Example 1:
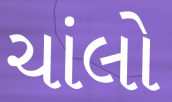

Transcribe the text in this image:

ચાંલો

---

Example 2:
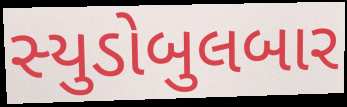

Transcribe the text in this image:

સ્યુડોબુલબાર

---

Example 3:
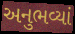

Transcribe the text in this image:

અનુભવ્યાં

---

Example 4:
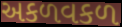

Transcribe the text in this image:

અકળવકળ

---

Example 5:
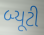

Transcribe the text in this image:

બ્યૂટી